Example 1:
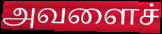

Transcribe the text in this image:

அவளைச்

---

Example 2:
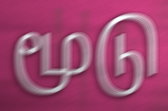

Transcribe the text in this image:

மூடு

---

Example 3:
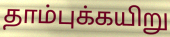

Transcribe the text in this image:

தாம்புக்கயிறு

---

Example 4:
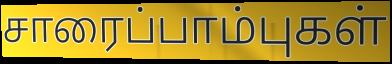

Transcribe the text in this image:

சாரைப்பாம்புகள்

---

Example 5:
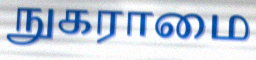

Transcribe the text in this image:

நுகராமை